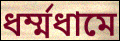
ধর্ম্মধামে